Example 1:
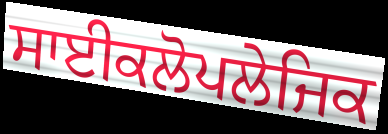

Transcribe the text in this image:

ਸਾਈਕਲੋਪਲੇਜਿਕ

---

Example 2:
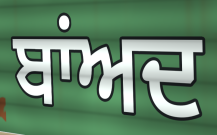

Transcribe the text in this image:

ਬਾਂਅਦ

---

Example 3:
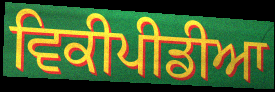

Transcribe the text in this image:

ਵਿਕੀਪੀਡੀਆ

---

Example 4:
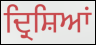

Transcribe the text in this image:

ਦ੍ਰਿਸ਼ਿਆਂ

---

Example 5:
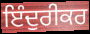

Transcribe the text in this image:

ਇੰਦੁਰੀਕਰ